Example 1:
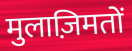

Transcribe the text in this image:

मुलाज़िमतों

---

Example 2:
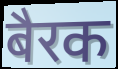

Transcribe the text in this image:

बैरक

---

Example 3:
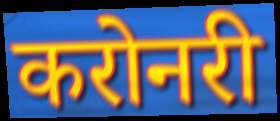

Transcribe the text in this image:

करोनरी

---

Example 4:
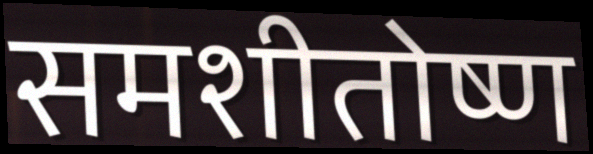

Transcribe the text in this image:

समशीतोष्ण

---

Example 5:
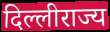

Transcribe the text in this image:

दिल्लीराज्य